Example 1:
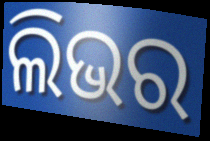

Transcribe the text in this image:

ଲିଭର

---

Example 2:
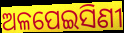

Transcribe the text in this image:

ଅଳପେଇସିଣୀ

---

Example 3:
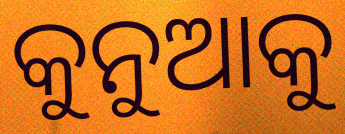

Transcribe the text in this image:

କୁନୁଆକୁ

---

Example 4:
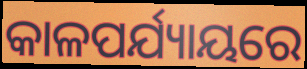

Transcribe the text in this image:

କାଳପର୍ଯ୍ୟାୟରେ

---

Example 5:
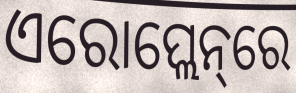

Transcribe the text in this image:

ଏରୋପ୍ଲେନ୍‌ରେ